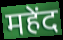
महेंद